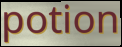
potion